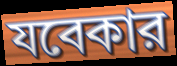
যবেকার